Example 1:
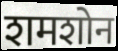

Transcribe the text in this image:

शमशोन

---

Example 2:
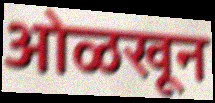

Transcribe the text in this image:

ओळखून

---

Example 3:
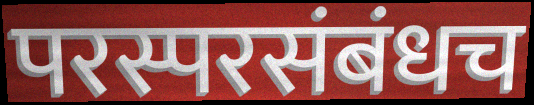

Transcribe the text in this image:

परस्परसंबंधच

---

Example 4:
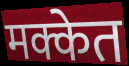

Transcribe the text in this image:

मक्केत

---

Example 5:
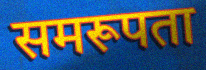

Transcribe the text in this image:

समरूपता